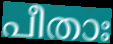
പീതാഃ